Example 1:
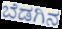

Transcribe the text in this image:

ಬೆಡಗಿನ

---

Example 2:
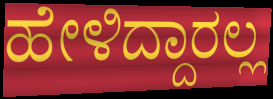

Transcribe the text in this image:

ಹೇಳಿದ್ದಾರಲ್ಲ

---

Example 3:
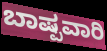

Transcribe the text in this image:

ಬಾಷ್ಪವಾರಿ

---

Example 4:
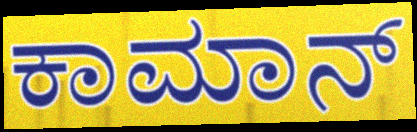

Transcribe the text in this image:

ಕಾಮಾನ್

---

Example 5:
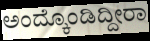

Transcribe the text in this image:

ಅಂದ್ಕೊಂಡಿದ್ದೀರಾ